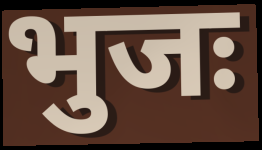
भुजः